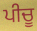
ਪੀਚੂ